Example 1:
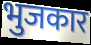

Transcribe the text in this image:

भुजकार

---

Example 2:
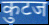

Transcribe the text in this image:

कुटज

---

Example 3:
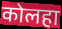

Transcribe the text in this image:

कोलहा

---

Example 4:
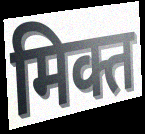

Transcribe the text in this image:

मिक्त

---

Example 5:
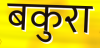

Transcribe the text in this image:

बकुरा